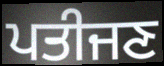
ਪਤੀਜਣ